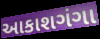
આકાશગંગા